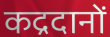
कद्रदानों